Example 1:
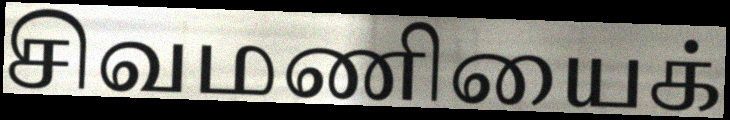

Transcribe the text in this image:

சிவமணியைக்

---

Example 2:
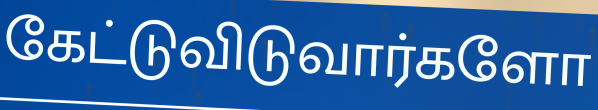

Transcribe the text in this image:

கேட்டுவிடுவார்களோ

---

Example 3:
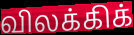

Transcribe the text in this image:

விலக்கிக்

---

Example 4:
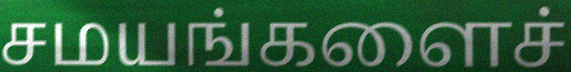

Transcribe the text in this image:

சமயங்களைச்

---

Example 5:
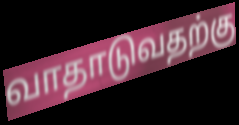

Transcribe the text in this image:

வாதாடுவதற்கு